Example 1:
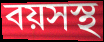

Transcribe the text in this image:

বয়সস্থ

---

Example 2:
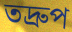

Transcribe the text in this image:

তদ্ৰুপ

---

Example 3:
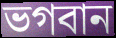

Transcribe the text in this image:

ভগবান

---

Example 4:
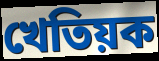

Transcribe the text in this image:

খেতিয়ক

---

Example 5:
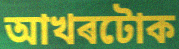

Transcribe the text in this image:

আখৰটোক